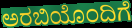
ಅರಬಿಯೊಂದಿಗೆ